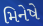
મિનેષે